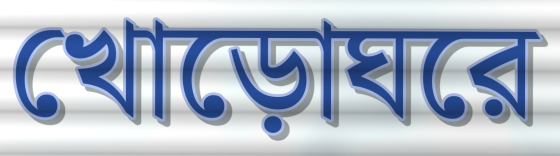
খোড়োঘরে